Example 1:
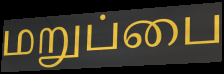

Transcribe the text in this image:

மறுப்பை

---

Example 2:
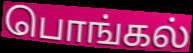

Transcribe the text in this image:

பொங்கல்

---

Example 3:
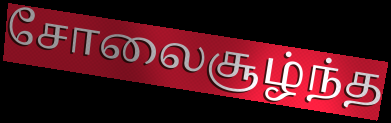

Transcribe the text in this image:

சோலைசூழ்ந்த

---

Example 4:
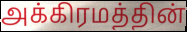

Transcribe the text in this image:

அக்கிரமத்தின்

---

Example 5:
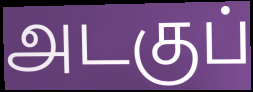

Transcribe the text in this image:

அடகுப்